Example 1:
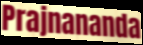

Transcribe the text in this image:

Prajnananda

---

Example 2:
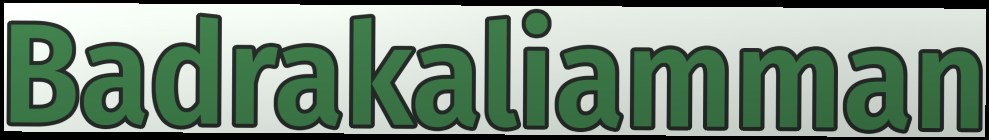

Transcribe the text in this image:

Badrakaliamman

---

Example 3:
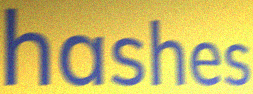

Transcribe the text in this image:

hashes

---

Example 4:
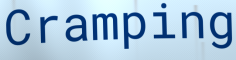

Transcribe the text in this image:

Cramping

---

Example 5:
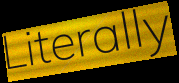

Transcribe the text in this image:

Literally